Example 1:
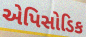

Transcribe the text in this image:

એપિસોડિક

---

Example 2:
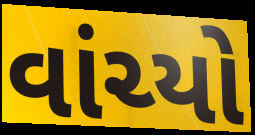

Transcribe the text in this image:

વાંચ્યો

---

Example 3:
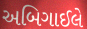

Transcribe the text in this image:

અબિગાઈલે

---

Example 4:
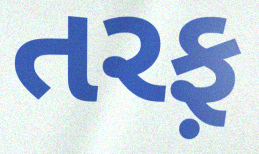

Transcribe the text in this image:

તરફ઼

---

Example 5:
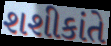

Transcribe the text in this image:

શશીકાંતે